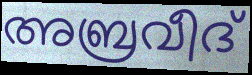
അബ്രവീദ്